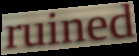
ruined